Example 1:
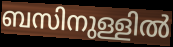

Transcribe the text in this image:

ബസിനുള്ളിൽ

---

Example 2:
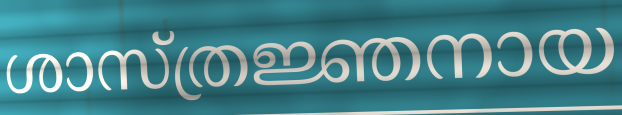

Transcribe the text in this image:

ശാസ്ത്രജ്ഞനായ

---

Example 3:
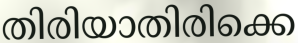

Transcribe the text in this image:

തിരിയാതിരിക്കെ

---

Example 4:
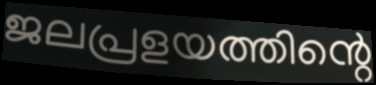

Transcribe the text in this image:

ജലപ്രളയത്തിന്റെ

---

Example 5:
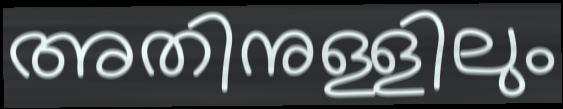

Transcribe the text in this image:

അതിനുള്ളിലും